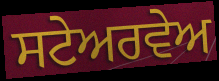
ਸਟੇਅਰਵੇਅ